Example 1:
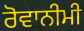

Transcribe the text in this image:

ਰੋਵਾਨੀਮੀ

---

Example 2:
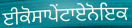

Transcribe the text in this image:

ਈਕੋਸਾਪੇਂਟਾਏਨੋਇਕ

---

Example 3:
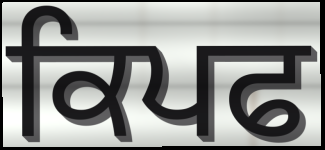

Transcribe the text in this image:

ਕਿਪਫ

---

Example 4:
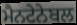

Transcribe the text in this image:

ਮੈਨਟੇਨੇਬਲ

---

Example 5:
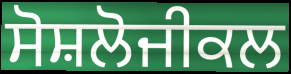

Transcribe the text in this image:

ਸੋਸ਼ਲੋਜੀਕਲ